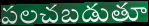
పలచబడుతూ